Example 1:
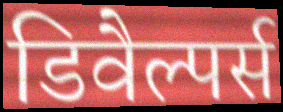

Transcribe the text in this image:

डिवैल्पर्स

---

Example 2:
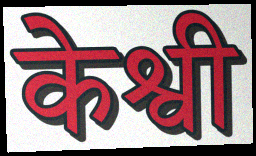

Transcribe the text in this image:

केश्वी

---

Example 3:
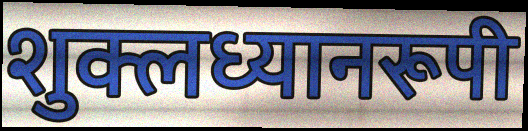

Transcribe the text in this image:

शुक्लध्यानरूपी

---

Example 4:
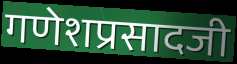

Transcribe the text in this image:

गणेशप्रसादजी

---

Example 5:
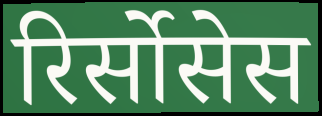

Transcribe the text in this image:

रिर्सोसेस